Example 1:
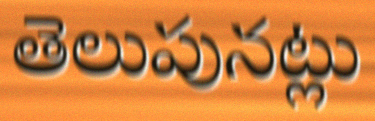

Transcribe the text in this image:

తెలుపునట్లు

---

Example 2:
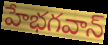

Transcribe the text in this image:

హేభగవాన్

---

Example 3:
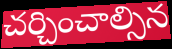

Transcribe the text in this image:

చర్చించాల్సిన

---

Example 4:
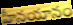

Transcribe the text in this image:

హీనయానం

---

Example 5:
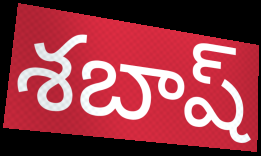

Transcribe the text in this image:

శబాష్